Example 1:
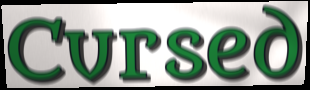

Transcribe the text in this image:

Cursed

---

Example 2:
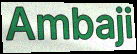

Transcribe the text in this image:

Ambaji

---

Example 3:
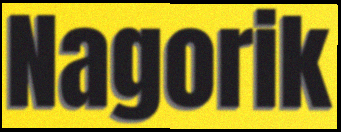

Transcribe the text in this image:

Nagorik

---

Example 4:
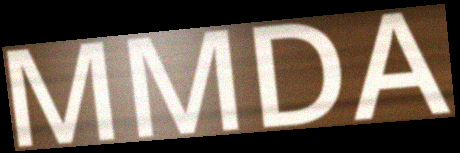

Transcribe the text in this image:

MMDA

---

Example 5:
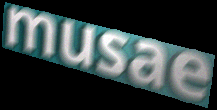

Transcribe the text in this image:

musae